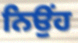
ਨਿਉਂਹ